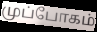
முப்போகம்